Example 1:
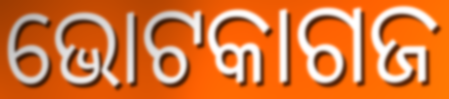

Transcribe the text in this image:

ଭୋଟକାଗଜ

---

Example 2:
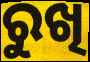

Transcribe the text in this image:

ରୁଖି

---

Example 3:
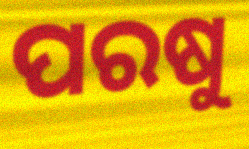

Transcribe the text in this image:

ପରଷୁ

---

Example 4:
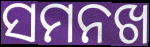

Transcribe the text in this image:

ସମନଖ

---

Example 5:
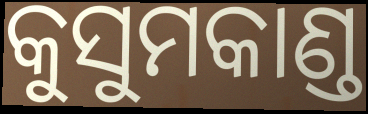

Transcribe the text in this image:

କୁସୁମକାଣ୍ଡ